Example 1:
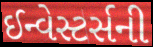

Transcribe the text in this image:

ઈન્વેસ્ટર્સની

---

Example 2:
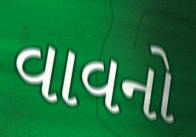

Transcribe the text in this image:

વાવનો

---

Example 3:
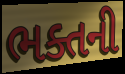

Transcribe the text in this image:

ભક્તની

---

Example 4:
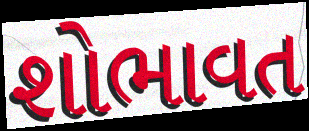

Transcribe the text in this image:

શોભાવત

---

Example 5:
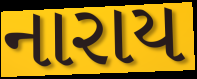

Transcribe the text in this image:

નારાય